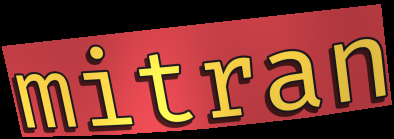
mitran